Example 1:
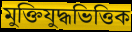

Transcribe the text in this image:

মুক্তিযুদ্ধভিত্তিক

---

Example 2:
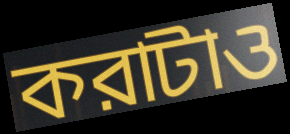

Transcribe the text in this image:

করাটাও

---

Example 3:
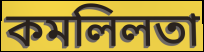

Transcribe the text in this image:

কমলিলতা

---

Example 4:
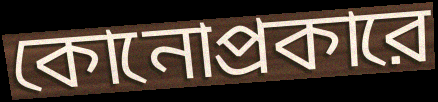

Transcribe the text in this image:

কোনোপ্রকারে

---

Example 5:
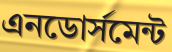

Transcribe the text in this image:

এনডোর্সমেন্ট